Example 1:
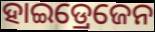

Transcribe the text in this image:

ହାଇଡ୍ରେଜେନ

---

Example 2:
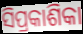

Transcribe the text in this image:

ସିପ୍ରକାଶିକା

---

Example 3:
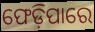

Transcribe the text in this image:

ଫେଡ଼ିପାରେ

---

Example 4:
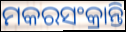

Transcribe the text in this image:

ମକରସଂକ୍ରାନ୍ତି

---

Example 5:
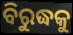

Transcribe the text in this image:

ବିରୁଦ୍ଧକୁ